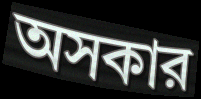
অসকার